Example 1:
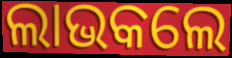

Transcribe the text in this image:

ଲାଭକଲେ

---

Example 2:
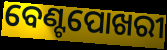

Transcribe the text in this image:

ବେଣ୍ଟପୋଖରୀ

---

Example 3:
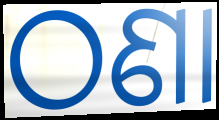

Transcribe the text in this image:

ଠଣା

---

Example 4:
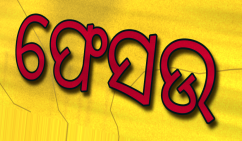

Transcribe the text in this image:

ଫେସଉ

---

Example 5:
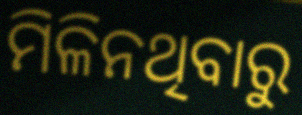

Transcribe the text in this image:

ମିଳିନଥିବାରୁ